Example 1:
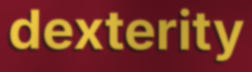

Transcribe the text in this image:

dexterity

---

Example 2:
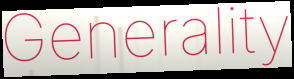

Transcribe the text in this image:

Generality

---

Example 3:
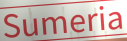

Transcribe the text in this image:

Sumeria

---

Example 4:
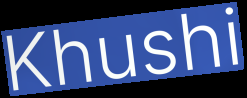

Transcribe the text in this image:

Khushi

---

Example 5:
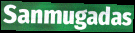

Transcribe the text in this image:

Sanmugadas